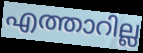
എത്താറില്ല